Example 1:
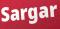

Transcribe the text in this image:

Sargar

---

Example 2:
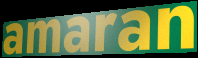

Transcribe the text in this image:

amaran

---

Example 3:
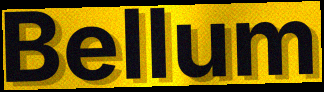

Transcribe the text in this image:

Bellum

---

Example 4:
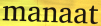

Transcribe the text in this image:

manaat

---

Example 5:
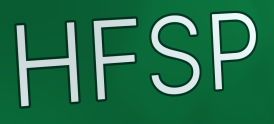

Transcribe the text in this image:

HFSP